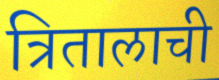
त्रितालाची